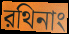
রথিনাং